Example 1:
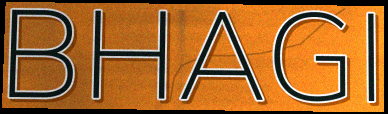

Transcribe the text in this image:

BHAGI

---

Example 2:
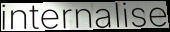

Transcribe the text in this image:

internalise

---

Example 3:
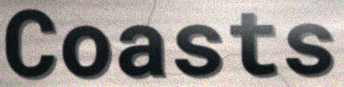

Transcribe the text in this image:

Coasts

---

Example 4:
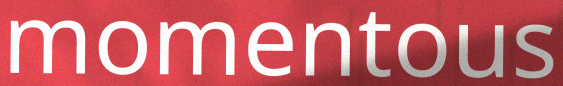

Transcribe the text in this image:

momentous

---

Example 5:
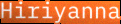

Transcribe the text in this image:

Hiriyanna